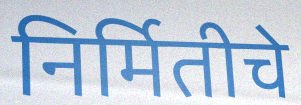
निर्मितीचे